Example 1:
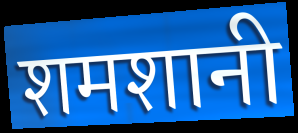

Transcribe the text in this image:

शमशानी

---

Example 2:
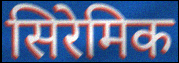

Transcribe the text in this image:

सिरेमिक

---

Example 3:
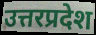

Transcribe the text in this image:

उत्तरप्रदेश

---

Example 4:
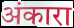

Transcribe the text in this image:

अंकारा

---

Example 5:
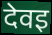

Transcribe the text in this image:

देवइ